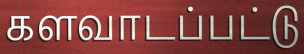
களவாடப்பட்டு